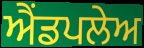
ਐਂਡਪਲੇਅ